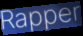
Rapper